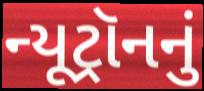
ન્યૂટ્રૉનનું